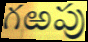
గఱపు